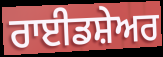
ਰਾਈਡਸ਼ੇਅਰ